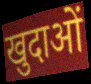
खुदाओं